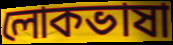
লোকভাষা